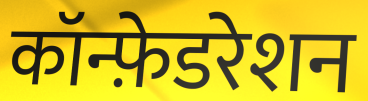
कॉन्फ़ेडरेशन